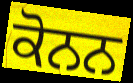
ਕੋਨਨ